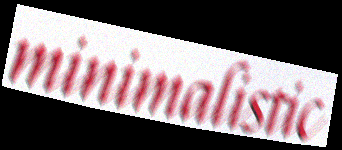
minimalistic